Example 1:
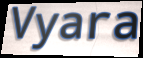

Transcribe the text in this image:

Vyara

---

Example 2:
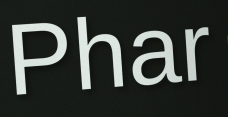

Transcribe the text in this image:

Phar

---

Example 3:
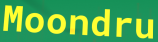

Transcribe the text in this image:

Moondru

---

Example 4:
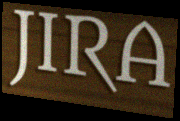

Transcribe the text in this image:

JIRA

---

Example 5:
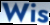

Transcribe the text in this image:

Wis